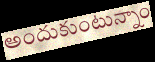
అందుకుంటున్నాం